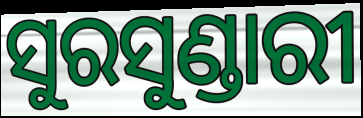
ସୁରସୁଣ୍ଡାରୀ